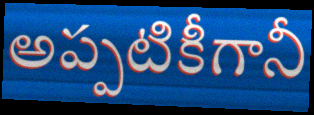
అప్పటికీగానీ